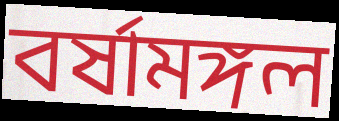
বর্ষামঙ্গল